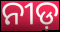
ନୀଡ଼